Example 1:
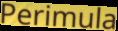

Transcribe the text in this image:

Perimula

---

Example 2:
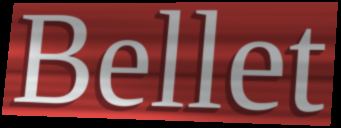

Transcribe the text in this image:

Bellet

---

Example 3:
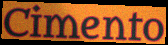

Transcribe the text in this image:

Cimento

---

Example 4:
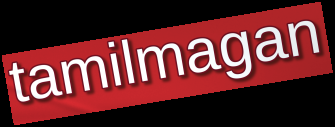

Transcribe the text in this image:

tamilmagan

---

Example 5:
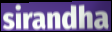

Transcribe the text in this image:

sirandha